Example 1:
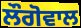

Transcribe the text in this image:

ਲੌਗੋਵਾਲ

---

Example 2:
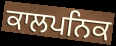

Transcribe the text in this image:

ਕਾਲਪਨਿਕ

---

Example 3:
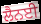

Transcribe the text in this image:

ਲੈਨਈ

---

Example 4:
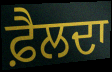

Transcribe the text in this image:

ਫ਼ੈਲਦਾ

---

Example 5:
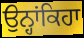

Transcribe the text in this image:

ਉਨ੍ਹਾਂਕਿਹਾ